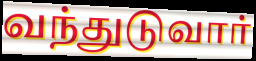
வந்துடுவார்